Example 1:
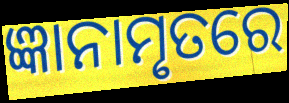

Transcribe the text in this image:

ଜ୍ଞାନାମୃତରେ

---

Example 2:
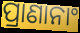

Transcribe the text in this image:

ପ୍ରାଣାନାଂ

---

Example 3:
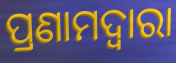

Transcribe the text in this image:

ପ୍ରଣାମଦ୍ୱାରା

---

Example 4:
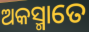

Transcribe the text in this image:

ଅକସ୍ମାତେ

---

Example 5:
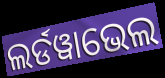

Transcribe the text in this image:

ଲର୍ଡୱାଭେଲ